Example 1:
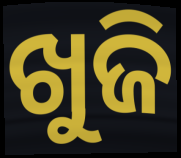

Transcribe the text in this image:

ଖୁଜି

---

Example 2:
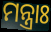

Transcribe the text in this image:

ମନ୍ତ୍ରାଃ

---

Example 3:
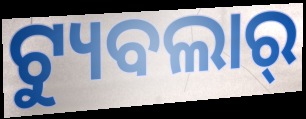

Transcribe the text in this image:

ଟ୍ୟୁବଲାର୍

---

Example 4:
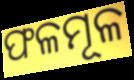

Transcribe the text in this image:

ଫଳମୂଳ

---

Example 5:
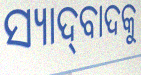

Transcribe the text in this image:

ସ୍ୟାଦ୍‌ବାଦକୁ